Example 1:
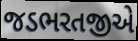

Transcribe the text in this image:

જડભરતજીએ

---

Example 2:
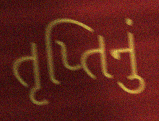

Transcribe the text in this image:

તૃપ્તિનું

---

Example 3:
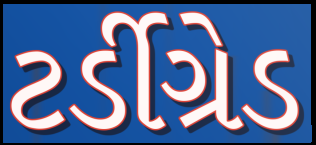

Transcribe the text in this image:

ટર્ડીગ્રેડ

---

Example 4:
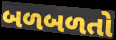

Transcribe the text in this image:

બળબળતો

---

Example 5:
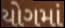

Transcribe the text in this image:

યોગમાં